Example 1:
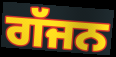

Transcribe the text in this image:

ਗੱਜਨ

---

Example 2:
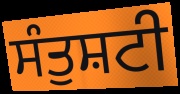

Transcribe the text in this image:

ਸੰਤੁਸ਼ਟੀ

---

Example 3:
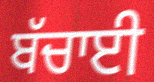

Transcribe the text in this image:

ਬੱਚਾਈ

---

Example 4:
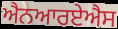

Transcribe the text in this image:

ਐਨਆਰਏਐਸ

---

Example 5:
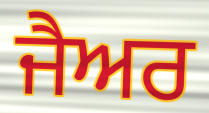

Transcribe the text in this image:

ਜੈਅਰ